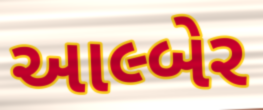
આલ્બેર